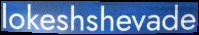
lokeshshevade